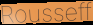
Rousseff